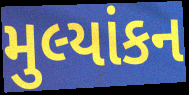
મુલ્યાંકન